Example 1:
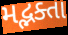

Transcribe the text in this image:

મદ્ભક્તા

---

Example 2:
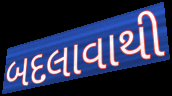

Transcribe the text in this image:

બદલાવાથી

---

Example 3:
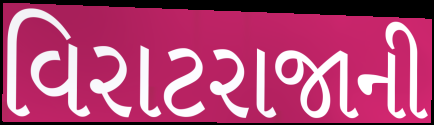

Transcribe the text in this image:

વિરાટરાજાની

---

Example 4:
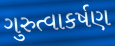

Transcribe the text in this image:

ગુરુત્વાકર્ષણ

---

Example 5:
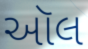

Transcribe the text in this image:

ઑલ